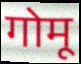
गोमू